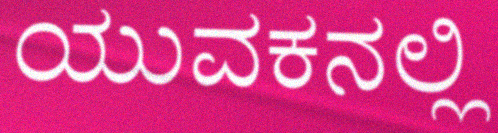
ಯುವಕನಲ್ಲಿ